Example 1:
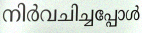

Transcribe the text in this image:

നിർവചിച്ചപ്പോൾ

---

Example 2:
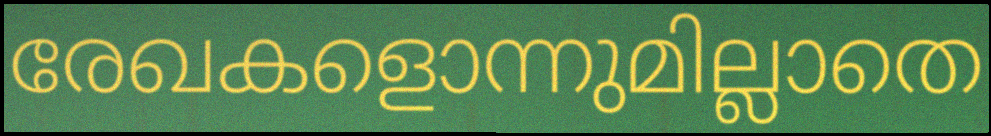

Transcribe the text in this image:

രേഖകളൊന്നുമില്ലാതെ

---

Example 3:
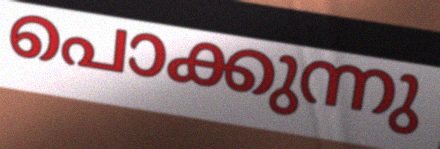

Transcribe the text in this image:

പൊക്കുന്നു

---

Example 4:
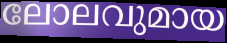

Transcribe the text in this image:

ലോലവുമായ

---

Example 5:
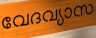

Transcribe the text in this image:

വേദവ്യാസ